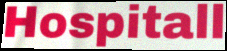
Hospitall